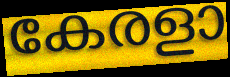
കേരളാ